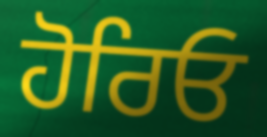
ਹੋਰਿਓ